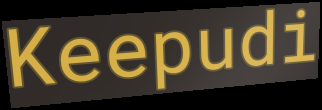
Keepudi